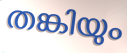
തങ്കിയും